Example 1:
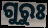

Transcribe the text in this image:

ଗୁରୁଃ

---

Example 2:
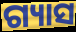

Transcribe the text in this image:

ଗ୍ୟାସ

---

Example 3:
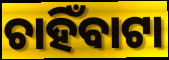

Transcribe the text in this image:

ଚାହିଁବାଟା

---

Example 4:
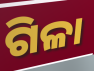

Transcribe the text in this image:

ଗିଳା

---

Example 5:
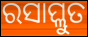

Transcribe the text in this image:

ରସାପ୍ଲୁତ